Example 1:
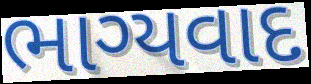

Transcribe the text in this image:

ભાગ્યવાદ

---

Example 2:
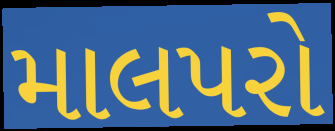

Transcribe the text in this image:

માલપરો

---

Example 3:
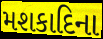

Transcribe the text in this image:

મશકાદિના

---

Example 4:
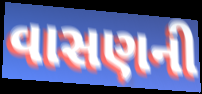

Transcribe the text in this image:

વાસણની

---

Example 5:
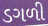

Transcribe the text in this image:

ડગળી